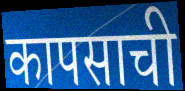
कापसाची